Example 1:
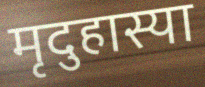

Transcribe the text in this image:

मृदुहास्या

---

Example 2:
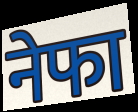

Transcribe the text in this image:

नेफा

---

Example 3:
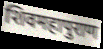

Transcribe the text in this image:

शिवमहापुराण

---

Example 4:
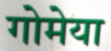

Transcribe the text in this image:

गोमेया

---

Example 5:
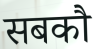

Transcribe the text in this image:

सबकौ